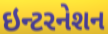
ઇન્ટરનેશન